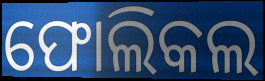
ଫୋଲିକଲ